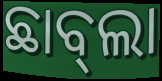
ଛାବ୍‍ଲା